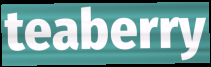
teaberry